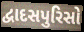
દ્વાદસપુરિસો